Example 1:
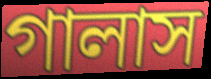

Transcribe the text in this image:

গালাস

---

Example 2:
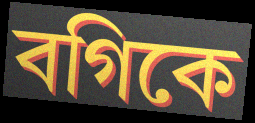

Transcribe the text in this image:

বগিকে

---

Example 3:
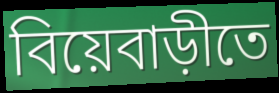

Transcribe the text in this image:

বিয়েবাড়ীতে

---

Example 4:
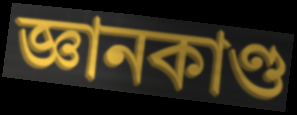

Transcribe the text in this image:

জ্ঞানকাণ্ড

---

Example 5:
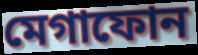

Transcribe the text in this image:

মেগাফোন